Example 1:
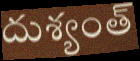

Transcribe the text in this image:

దుశ్యంత్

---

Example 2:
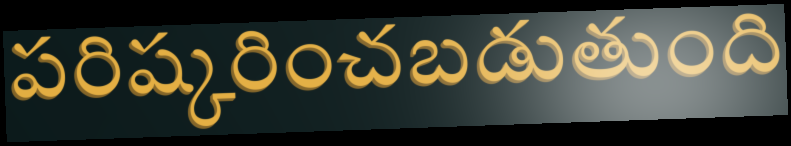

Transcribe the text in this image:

పరిష్కరించబడుతుంది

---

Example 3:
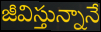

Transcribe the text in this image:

జీవిస్తున్నానే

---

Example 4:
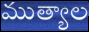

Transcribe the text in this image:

ముత్యాల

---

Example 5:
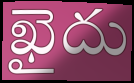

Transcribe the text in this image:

ఖైదు